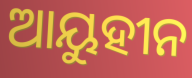
ଆୟୁହୀନ